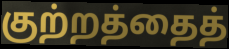
குற்றத்தைத்